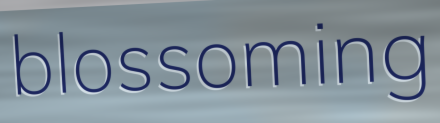
blossoming